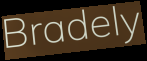
Bradely